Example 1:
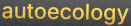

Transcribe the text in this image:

autoecology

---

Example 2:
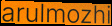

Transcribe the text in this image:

arulmozhi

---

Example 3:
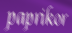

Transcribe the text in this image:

paprikor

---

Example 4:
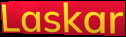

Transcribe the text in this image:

Laskar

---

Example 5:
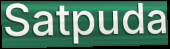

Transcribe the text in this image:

Satpuda